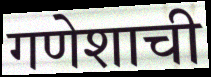
गणेशाची